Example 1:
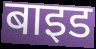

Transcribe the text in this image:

बाइड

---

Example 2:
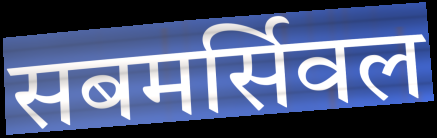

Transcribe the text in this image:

सबमर्सिवल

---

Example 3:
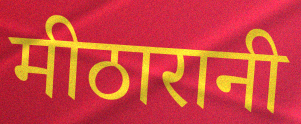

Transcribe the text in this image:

मीठारानी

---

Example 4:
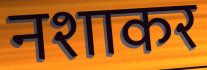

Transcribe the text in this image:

नशाकर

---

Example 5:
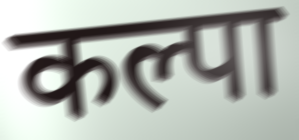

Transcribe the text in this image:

कल्पा